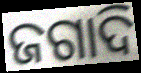
ଜଗାଦି